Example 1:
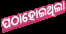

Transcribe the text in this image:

ପଠାହୋଇଥିଲା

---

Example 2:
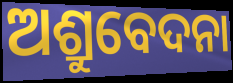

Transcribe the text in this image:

ଅଶ୍ରୁବେଦନା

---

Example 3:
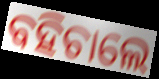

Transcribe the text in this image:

ବହିଚାଲେ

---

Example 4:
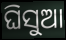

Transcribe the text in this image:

ଘିସୁଆ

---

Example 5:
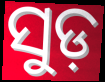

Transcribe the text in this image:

ସୁଡ଼